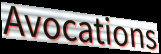
Avocations